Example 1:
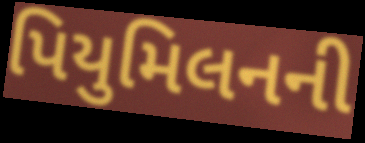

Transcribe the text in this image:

પિયુમિલનની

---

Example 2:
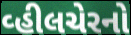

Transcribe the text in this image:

વ્હીલચેરનો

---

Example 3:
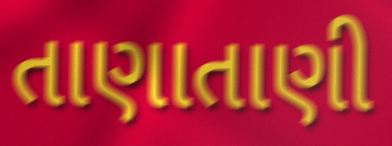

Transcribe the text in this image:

તાણાતાણી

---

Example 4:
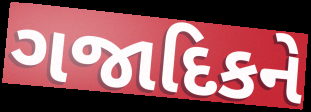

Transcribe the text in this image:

ગજાદિકને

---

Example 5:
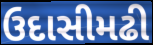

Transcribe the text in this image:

ઉદાસીમઢી